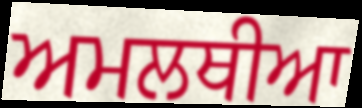
ਅਮਲਥੀਆ